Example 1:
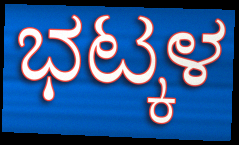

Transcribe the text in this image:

ಭಟ್ಕಳ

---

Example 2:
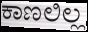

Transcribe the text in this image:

ಕಾಣಲಿಲ್ಲ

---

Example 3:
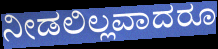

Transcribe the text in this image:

ನೀಡಲಿಲ್ಲವಾದರೂ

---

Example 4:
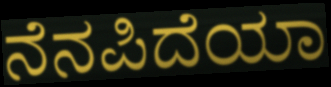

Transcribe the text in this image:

ನೆನಪಿದೆಯಾ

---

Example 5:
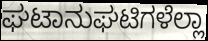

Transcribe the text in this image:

ಘಟಾನುಘಟಿಗಳೆಲ್ಲಾ